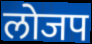
लोजप